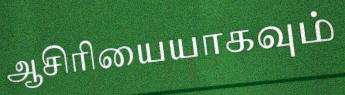
ஆசிரியையாகவும்